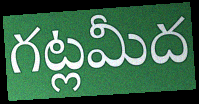
గట్లమీద